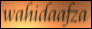
wahidaafza